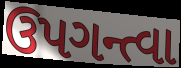
ઉપગન્ત્વા